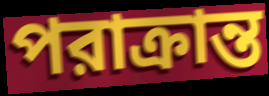
পরাক্রান্ত